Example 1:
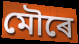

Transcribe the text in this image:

মৌৰে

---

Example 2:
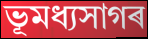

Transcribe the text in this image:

ভূমধ্যসাগৰ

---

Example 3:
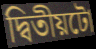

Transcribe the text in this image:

দ্বিতীয়টো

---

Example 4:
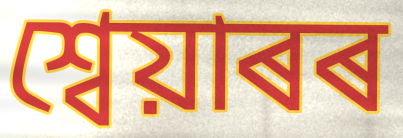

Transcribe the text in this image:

শ্বেয়াৰৰ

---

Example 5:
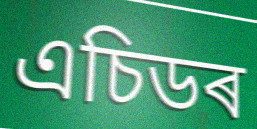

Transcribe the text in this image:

এচিডৰ